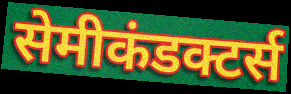
सेमीकंडक्टर्स